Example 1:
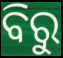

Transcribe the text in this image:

ବିରୁ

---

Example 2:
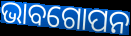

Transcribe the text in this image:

ଭାବଗୋପନ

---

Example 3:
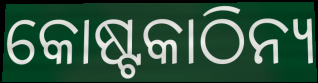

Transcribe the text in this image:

କୋଷ୍ଟକାଠିନ୍ୟ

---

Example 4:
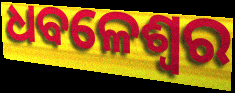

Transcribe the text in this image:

ଧବଳେଶ୍ଵର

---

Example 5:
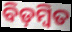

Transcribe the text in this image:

ବିଡ଼ମ୍ବିତ